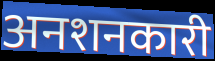
अनशनकारी